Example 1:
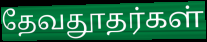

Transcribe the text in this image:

தேவதூதர்கள்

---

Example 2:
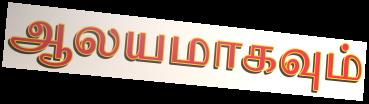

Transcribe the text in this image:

ஆலயமாகவும்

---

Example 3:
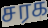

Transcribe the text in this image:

சரக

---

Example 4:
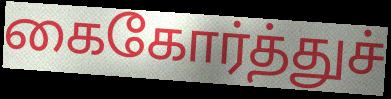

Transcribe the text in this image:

கைகோர்த்துச்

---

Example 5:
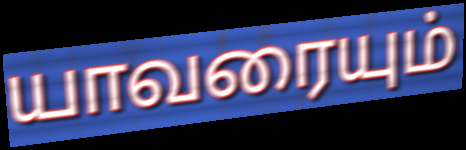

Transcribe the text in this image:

யாவரையும்